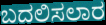
ಬದಲಿಸಲಾರ